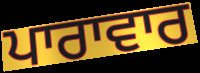
ਪਾਰਾਵਾਰ